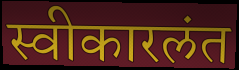
स्वीकारलंत